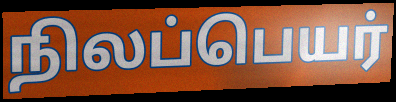
நிலப்பெயர்